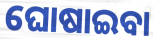
ଘୋଷାଇବା